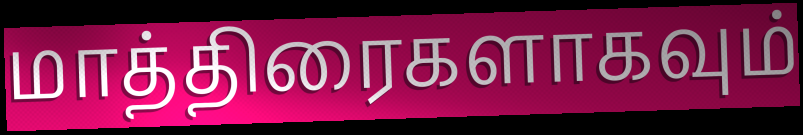
மாத்திரைகளாகவும்